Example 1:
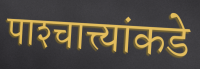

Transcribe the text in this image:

पाश्चात्त्यांकडे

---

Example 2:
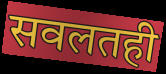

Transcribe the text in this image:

सवलतही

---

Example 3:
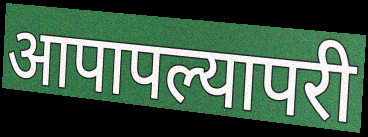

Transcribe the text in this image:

आपापल्यापरी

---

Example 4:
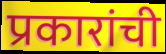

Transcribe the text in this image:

प्रकारांची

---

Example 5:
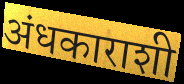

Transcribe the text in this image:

अंधकाराशी